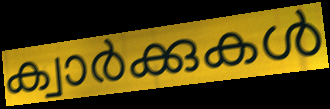
ക്വാർക്കുകൾ